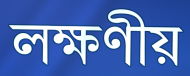
লক্ষণীয়